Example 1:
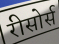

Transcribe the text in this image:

रीसोर्स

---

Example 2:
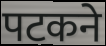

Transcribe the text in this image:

पटकने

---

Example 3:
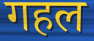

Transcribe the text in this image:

गहल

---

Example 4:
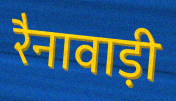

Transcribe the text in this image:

रैनावाड़ी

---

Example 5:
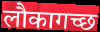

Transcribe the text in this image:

लौकागच्छ